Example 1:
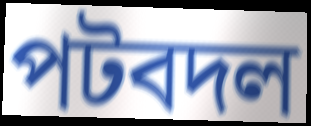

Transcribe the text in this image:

পটবদল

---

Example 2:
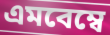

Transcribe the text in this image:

এমবেম্বে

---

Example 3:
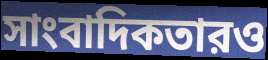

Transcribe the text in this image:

সাংবাদিকতারও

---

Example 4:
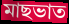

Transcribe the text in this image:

মাছভাত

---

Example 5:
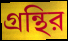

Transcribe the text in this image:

গ্রন্থির